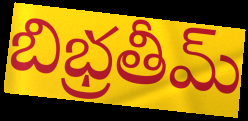
బిభ్రతీమ్